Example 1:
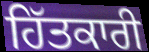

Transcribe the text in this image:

ਹਿੱਤਕਾਰੀ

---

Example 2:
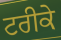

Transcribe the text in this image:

ਟਰੀਕੇ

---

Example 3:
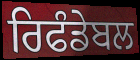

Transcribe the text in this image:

ਰਿਫੰਡੇਬਲ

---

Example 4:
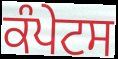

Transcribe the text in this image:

ਕੰਪੇਟਸ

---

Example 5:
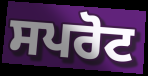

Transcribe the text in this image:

ਸਪਰੋਟ